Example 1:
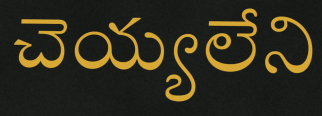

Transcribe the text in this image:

చెయ్యలేని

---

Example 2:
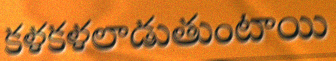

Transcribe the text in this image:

కళకళలాడుతుంటాయి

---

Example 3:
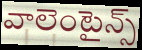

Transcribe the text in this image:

వాలెంటైన్స్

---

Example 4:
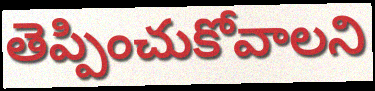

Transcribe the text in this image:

తెప్పించుకోవాలని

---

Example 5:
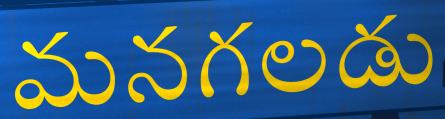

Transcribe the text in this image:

మనగలడు